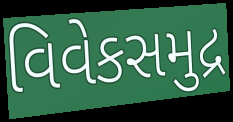
વિવેકસમુદ્ર